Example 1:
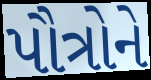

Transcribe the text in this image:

પૌત્રોને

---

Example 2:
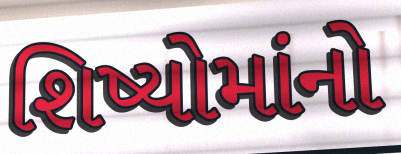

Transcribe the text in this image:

શિષ્યોમાંનો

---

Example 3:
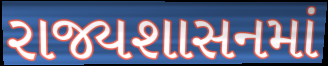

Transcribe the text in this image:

રાજ્યશાસનમાં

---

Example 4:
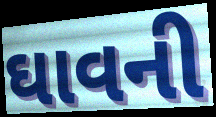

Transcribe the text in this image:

ઘાવની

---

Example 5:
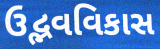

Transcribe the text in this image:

ઉદ્ભવવિકાસ